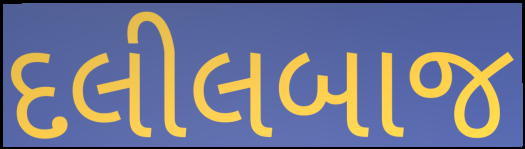
દલીલબાજ